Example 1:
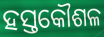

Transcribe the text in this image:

ହସ୍ତକୌଶଳ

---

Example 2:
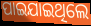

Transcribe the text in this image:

ପାଇଯାଇଥିଲେ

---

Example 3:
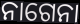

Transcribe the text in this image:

ନାଗେନା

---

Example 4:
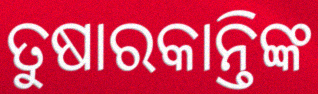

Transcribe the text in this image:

ତୁଷାରକାନ୍ତିଙ୍କ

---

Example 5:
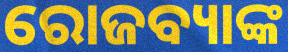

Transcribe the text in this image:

ରୋଜବ୍ୟାଙ୍କ